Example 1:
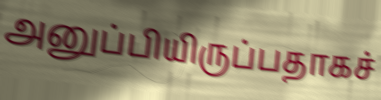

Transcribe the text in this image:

அனுப்பியிருப்பதாகச்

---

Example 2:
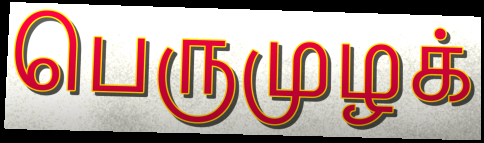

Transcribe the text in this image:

பெருமுழக்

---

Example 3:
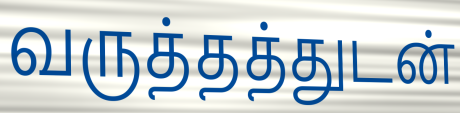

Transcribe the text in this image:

வருத்தத்துடன்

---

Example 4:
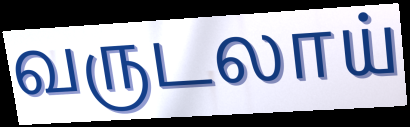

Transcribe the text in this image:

வருடலாய்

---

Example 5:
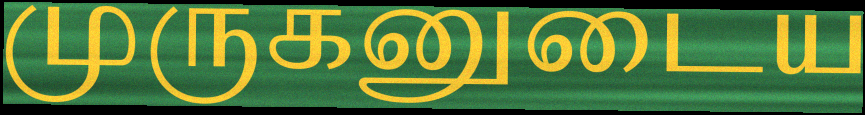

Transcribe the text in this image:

முருகனுடைய